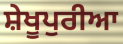
ਸ਼ੇਖੂਪੁਰੀਆ